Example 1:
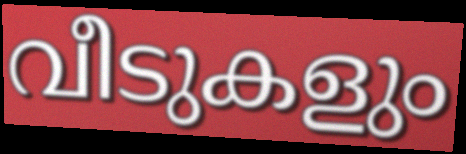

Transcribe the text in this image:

വീടുകളും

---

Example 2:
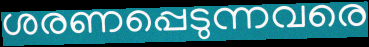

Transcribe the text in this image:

ശരണപ്പെടുന്നവരെ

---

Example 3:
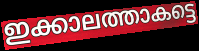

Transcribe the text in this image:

ഇക്കാലത്താകട്ടെ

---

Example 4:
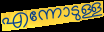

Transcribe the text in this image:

എന്നോടുള്ള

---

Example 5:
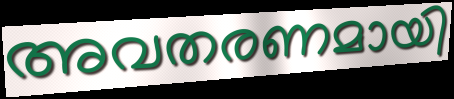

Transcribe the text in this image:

അവതരണമായി